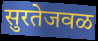
सुरतेजवळ